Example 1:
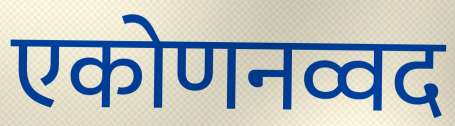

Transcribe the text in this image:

एकोणनव्वद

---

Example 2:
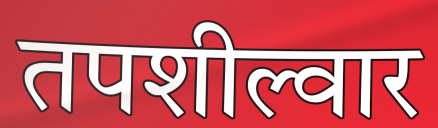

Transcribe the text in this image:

तपशील्वार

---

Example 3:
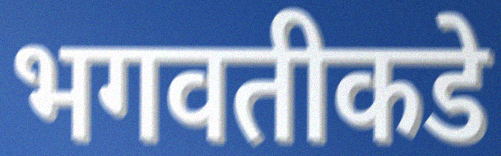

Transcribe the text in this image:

भगवतीकडे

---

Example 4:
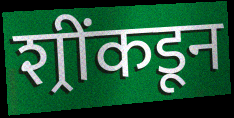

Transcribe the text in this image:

श्रींकडून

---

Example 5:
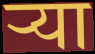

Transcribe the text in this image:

ऱ्या